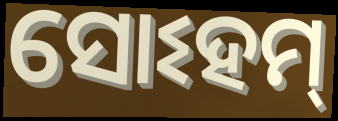
ସୋଽହମ୍